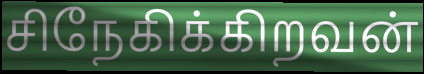
சிநேகிக்கிறவன்